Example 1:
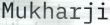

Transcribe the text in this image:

Mukharji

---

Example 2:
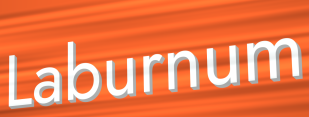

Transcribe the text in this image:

Laburnum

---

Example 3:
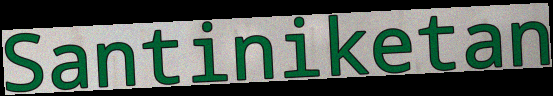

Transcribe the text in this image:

Santiniketan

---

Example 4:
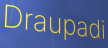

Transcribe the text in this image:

Draupadi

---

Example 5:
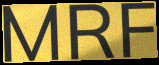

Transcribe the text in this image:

MRF